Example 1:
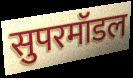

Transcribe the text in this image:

सुपरमॉडल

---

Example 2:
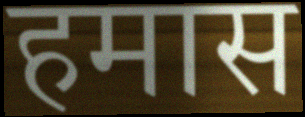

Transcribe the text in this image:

हमास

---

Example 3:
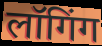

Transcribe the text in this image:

लॉगिंग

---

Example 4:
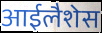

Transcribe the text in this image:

आईलैशेस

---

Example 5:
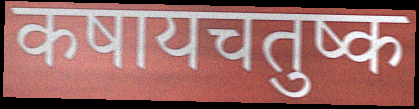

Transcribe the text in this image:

कषायचतुष्क